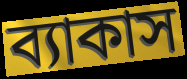
ব্যাকাস